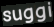
suggi